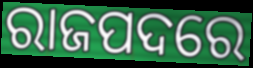
ରାଜପଦରେ